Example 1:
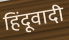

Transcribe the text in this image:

हिंदूवादी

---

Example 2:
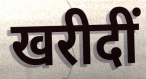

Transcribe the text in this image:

खरीदीं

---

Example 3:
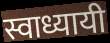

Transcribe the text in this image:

स्वाध्यायी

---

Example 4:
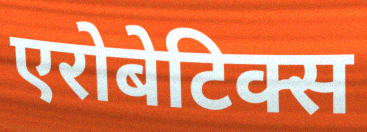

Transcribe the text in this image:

एरोबेटिक्स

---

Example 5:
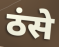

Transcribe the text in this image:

ठंसे